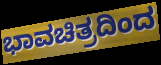
ಭಾವಚಿತ್ರದಿಂದ